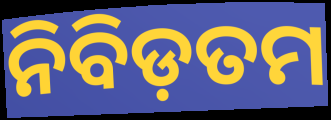
ନିବିଡ଼ତମ